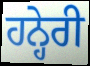
ਹਨ੍ਹੇਰੀ